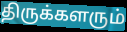
திருக்களரும்